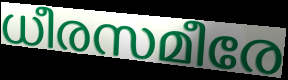
ധീരസമീരേ